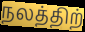
நலத்திற்